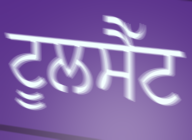
ਟੂਲਸੈੱਟ